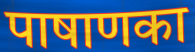
पाषाणका